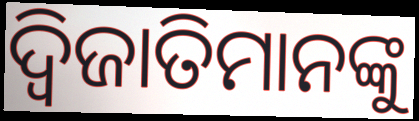
ଦ୍ୱିଜାତିମାନଙ୍କୁ